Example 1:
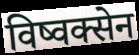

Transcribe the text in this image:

विष्वक्सेन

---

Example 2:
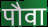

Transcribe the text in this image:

पौवा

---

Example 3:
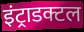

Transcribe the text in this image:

इंट्राडक्टल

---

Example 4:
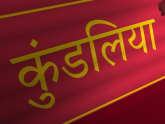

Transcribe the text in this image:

कुंडलिया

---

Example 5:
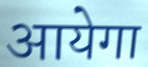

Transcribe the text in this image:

आयेगा